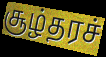
சூழ்தரச்